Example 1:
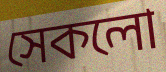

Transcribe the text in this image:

সেকলো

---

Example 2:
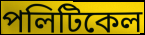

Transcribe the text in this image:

পলিটিকেল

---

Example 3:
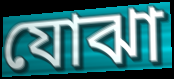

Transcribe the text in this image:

যোঝা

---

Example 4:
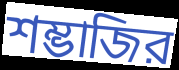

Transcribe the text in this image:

শম্ভাজির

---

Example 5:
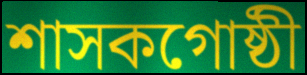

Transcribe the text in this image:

শাসকগোষ্ঠী